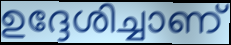
ഉദ്ദേശിച്ചാണ്